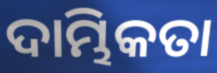
ଦାମ୍ଭିକତା